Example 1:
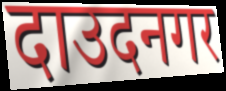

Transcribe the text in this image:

दाउदनगर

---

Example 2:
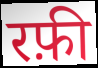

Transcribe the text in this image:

रफ़ी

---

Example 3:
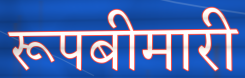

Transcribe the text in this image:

रूपबीमारी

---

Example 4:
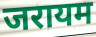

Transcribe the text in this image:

जरायम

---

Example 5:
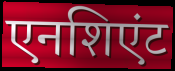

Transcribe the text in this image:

एनशिएंट